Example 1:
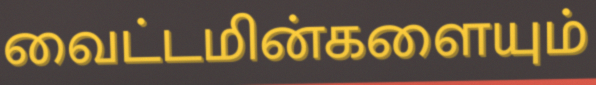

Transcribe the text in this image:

வைட்டமின்களையும்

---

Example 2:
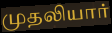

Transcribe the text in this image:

முதலியார்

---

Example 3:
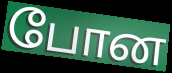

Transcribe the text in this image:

போன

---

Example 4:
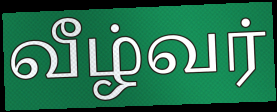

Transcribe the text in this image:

வீழ்வர்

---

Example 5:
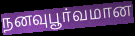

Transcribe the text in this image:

நனவுபூர்வமான